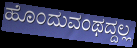
ಹೊಂದುವಂಥದ್ದಲ್ಲ